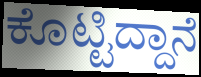
ಕೊಟ್ಟಿದ್ದಾನೆ